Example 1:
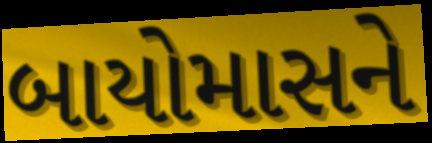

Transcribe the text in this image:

બાયોમાસને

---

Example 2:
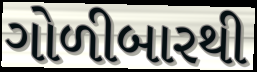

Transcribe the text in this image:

ગોળીબારથી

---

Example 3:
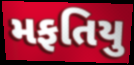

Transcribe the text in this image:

મફતિયુ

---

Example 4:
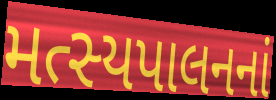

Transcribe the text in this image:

મત્સ્યપાલનનાં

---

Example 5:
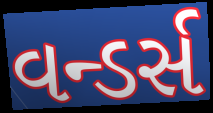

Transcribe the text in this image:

વન્ડર્સ